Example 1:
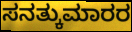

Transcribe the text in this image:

ಸನತ್ಕುಮಾರರ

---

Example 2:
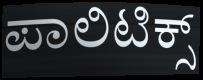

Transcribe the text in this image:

ಪಾಲಿಟಿಕ್ಸ್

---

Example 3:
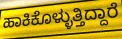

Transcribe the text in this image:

ಹಾಕಿಕೊಳ್ಳುತ್ತಿದ್ದಾರೆ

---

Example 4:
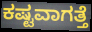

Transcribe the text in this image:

ಕಷ್ಟವಾಗತ್ತೆ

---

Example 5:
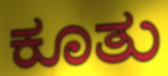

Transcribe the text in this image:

ಕೂತು